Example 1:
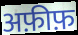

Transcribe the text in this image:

अफ़ीफ़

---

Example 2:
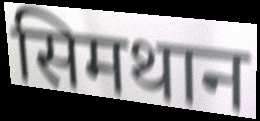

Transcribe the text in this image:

सिमथान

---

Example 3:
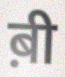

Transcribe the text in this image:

ब़ी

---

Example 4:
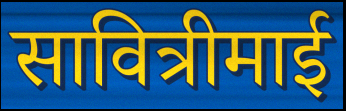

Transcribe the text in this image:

सावित्रीमाई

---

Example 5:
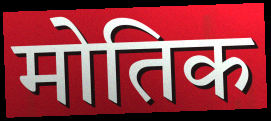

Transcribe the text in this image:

मोतिक